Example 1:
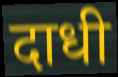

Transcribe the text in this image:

दाधी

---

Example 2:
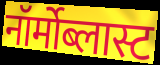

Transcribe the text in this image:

नॉर्मोब्लास्ट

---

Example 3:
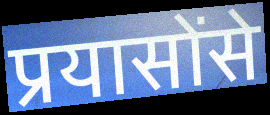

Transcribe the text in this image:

प्रयासोंसे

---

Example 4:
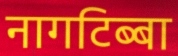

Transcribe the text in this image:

नागटिब्बा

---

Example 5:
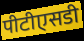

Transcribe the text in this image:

पीटीएसडी